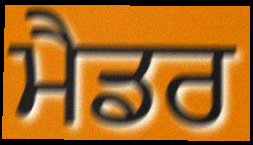
ਮੈਡਰ